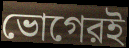
ভোগেরই